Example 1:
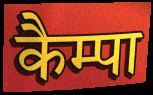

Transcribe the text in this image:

कैम्पा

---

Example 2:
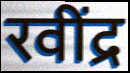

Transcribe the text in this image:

रवींद्र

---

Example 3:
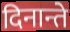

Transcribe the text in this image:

दिनान्ते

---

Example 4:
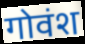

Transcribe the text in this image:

गोवंश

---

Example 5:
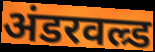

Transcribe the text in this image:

अंडरवल्र्ड